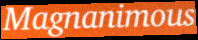
Magnanimous